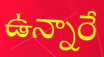
ఉన్నారే